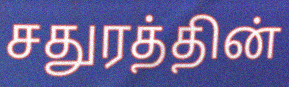
சதுரத்தின்